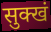
सुक्खं